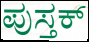
ಪುಸ್ತಕ್